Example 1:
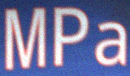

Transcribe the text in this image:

MPa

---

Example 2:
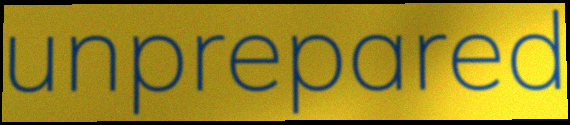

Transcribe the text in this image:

unprepared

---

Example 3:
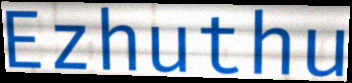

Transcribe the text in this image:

Ezhuthu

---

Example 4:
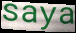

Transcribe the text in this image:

saya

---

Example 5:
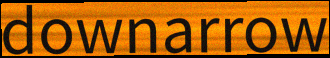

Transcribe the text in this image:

downarrow